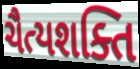
ચૈત્યશક્તિ